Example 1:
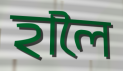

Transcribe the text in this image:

হালৈ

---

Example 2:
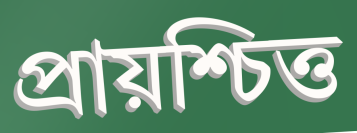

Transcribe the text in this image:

প্ৰায়শ্চিত্ত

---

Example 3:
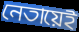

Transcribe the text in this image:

নেতায়েই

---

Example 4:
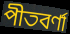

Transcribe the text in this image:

পীতবৰ্ণা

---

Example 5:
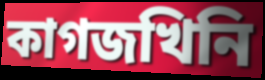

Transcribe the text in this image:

কাগজখিনি